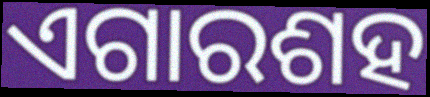
ଏଗାରଶହ